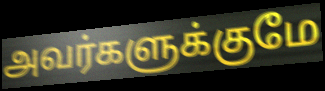
அவர்களுக்குமே